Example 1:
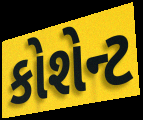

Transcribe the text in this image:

કોશેન્ટ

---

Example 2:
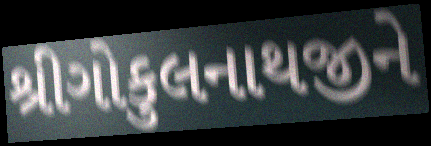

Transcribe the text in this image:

શ્રીગોકુલનાથજીને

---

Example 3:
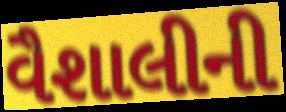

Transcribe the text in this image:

વૈશાલીની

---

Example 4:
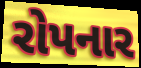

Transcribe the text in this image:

રોપનાર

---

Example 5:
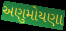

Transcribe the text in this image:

અણુમોયણા